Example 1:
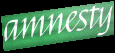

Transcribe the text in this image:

amnesty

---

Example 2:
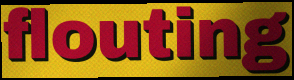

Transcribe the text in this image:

flouting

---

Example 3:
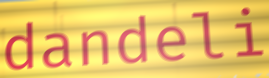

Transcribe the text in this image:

dandeli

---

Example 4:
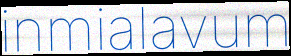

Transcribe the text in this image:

inmialavum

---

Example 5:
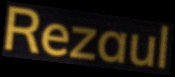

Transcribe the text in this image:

Rezaul